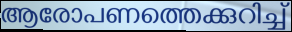
ആരോപണത്തെക്കുറിച്ച്